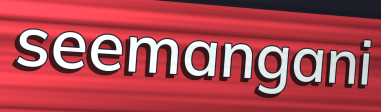
seemangani